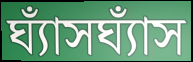
ঘ্যাঁসঘ্যাঁস